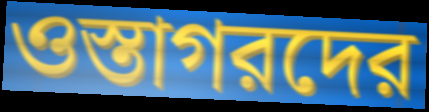
ওস্তাগরদের